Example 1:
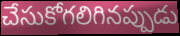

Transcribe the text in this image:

చేసుకోగలిగినప్పుడు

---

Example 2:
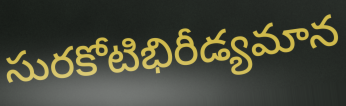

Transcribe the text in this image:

సురకోటిభిరీడ్యమాన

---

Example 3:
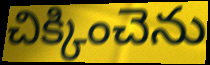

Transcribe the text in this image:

చిక్కించెను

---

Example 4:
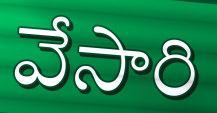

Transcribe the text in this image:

వేసారి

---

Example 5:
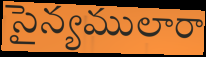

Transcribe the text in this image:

సైన్యములారా